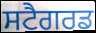
ਸਟੈਗਰਡ